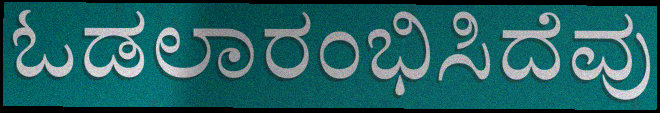
ಓಡಲಾರಂಭಿಸಿದೆವು